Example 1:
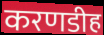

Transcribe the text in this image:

करणडीह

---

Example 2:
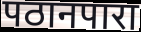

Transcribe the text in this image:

पठानपारा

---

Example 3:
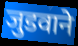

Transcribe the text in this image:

जुडवाने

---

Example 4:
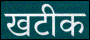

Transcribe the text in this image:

खटीक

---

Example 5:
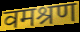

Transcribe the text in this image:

वमश्रण